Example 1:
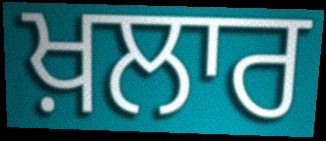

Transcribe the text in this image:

ਖ਼ਲਾਰ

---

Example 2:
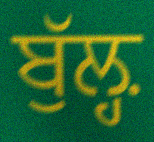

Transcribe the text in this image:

ਬੁੱਲ਼੍ਹ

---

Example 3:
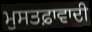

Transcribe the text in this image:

ਮੁਸਤਫ਼ਾਵਾਦੀ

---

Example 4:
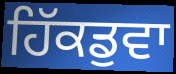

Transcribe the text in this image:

ਹਿੱਕਡੁਵਾ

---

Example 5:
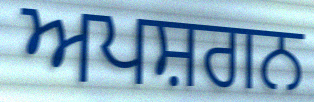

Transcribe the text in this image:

ਅਪਸ਼ਗਨ